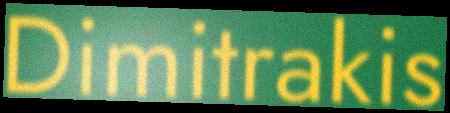
Dimitrakis